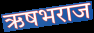
ऋषभराज